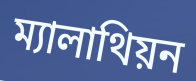
ম্যালাথিয়ন